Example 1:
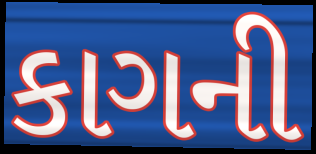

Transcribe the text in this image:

કાગની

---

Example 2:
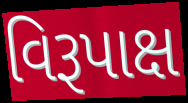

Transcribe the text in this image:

વિરૂપાક્ષ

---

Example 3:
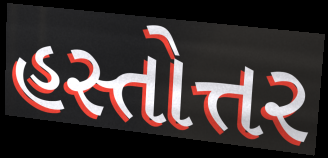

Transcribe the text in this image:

હસ્તોત્તર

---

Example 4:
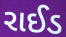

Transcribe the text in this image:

રાઈડ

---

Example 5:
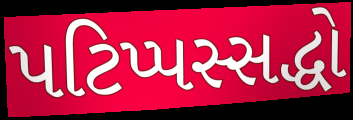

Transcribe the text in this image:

પટિપ્પસ્સદ્ધો